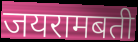
जयरामबती